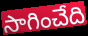
సాగించేది